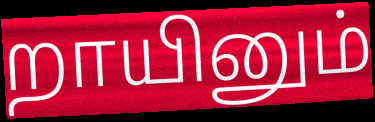
றாயினும்